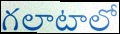
గలాటాలో